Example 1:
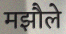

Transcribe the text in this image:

मझौले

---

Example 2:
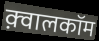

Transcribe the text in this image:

क़्वालकॉम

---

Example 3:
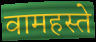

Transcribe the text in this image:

वामहस्ते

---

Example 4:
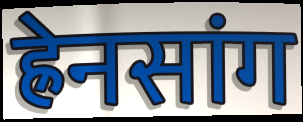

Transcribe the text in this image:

ह्रेनसांग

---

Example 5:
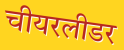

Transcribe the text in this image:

चीयरलीडर